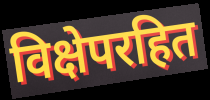
विक्षेपरहित